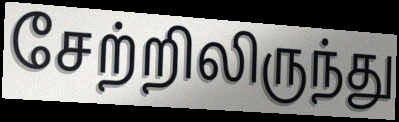
சேற்றிலிருந்து